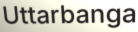
Uttarbanga